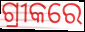
ଗ୍ରୀକରେ